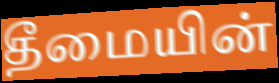
தீமையின்